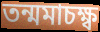
তন্মমাচক্ষ্ব